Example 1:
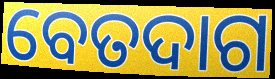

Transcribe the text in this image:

ବେତଦାଗ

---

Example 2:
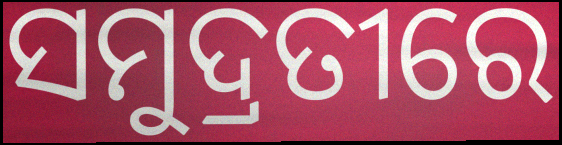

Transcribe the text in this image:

ସମୁଦ୍ରତୀରେ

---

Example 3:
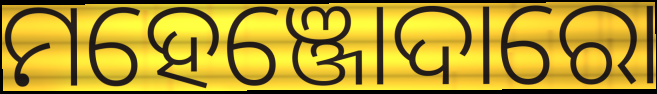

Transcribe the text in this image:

ମହେଞ୍ଜୋଦାରୋ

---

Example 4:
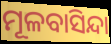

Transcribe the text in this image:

ମୂଳବାସିନ୍ଦା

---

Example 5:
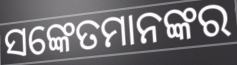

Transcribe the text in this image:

ସଙ୍କେତମାନଙ୍କର